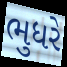
ભુધરે